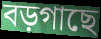
বড়গাছে